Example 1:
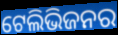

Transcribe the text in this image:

ଟେଲିଭିଜନର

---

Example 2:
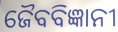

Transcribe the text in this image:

ଜୈବବିଜ୍ଞାନୀ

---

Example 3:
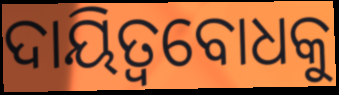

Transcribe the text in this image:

ଦାୟିତ୍ୱବୋଧକୁ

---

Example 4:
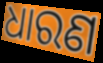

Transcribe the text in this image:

ଧାରଣ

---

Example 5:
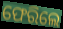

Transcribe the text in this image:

ଫେରିଲେ